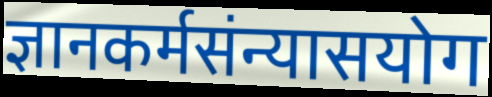
ज्ञानकर्मसंन्यासयोग